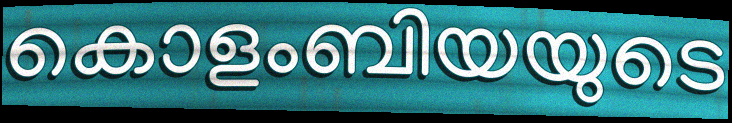
കൊളംബിയയുടെ